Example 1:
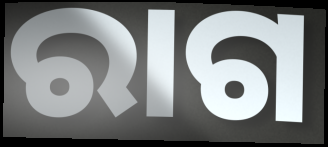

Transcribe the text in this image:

ରାଗ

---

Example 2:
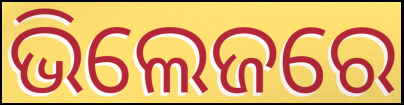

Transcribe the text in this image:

ଭିଲେଜରେ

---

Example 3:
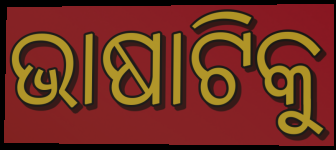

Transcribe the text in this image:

ଭାଷାଟିକୁ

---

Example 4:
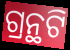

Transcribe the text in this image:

ଗ୍ରନ୍ଥଟି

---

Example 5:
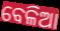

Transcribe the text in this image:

ବେଳିଆ